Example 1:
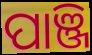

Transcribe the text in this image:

ପାଞ୍ଜି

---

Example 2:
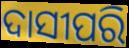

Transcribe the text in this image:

ଦାସୀପରି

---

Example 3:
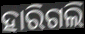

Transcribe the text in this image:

ହାରିଗଲି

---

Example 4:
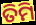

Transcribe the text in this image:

ତିମି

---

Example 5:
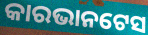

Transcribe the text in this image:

କାରଭାନଟେସ